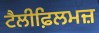
ਟੈਲੀਫ਼ਿਲਮਜ਼